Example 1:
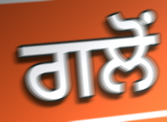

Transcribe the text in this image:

ਗਲੋਂ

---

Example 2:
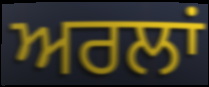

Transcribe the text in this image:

ਅਰਲਾਂ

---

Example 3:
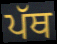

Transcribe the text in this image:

ਪੱਥ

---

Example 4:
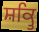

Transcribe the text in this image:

ਸ਼ਕ੍ਤਿ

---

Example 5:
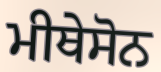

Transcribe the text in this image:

ਮੀਥੇਸੋਨ